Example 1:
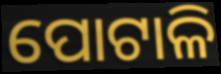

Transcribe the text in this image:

ପୋଟାଳି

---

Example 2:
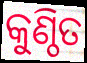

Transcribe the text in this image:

କୁଣ୍ଠିତ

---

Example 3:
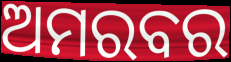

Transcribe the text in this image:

ଅମରବର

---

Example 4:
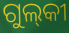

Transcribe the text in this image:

ଗୁଲ୍‌କୀ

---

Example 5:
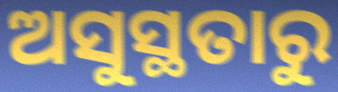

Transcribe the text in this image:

ଅସୁସ୍ଥତାରୁ